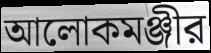
আলোকমঞ্জীর